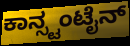
ಕಾನ್ಸ್ಟಂಟೈನ್